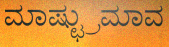
ಮಾಷ್ಟ್ರುಮಾವ